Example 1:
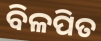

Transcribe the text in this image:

ବିଳପିତ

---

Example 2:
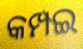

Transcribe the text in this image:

କମ୍ପଇ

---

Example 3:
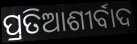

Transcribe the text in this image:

ପ୍ରତିଆଶୀର୍ବାଦ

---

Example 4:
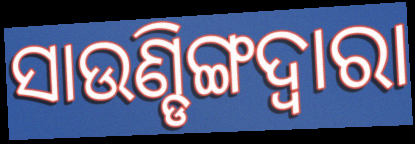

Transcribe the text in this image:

ସାଉଣ୍ଡିଙ୍ଗଦ୍ୱାରା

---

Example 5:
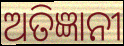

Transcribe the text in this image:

ଅତିଜ୍ଞାନୀ